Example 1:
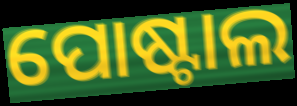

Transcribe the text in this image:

ପୋଷ୍ଟାଲ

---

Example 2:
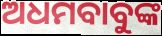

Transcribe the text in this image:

ଅଧମବାବୁଙ୍କ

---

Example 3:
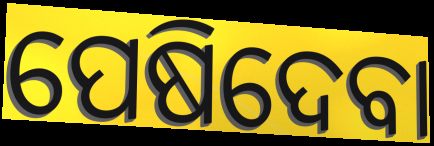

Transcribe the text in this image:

ପେଷିଦେବା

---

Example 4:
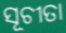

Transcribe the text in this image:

ସୂଚୀତା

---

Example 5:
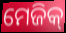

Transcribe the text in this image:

ମେଜିକ୍